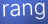
rang